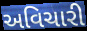
અવિચારી